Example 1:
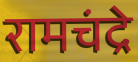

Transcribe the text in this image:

रामचंद्रे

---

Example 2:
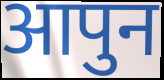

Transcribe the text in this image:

आपुन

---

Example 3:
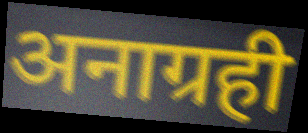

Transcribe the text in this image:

अनाग्रही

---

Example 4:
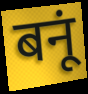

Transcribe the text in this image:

बनूं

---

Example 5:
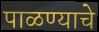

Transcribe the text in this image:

पाळण्याचे